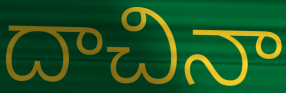
దాచినా